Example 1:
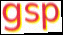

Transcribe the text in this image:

gsp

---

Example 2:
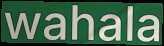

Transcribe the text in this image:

wahala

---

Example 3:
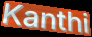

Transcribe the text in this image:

Kanthi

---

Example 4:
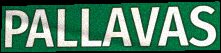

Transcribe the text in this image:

PALLAVAS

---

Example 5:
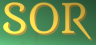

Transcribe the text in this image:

SOR